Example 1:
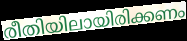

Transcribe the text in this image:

രീതിയിലായിരിക്കണം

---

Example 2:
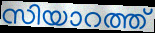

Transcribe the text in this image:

സിയാറത്ത്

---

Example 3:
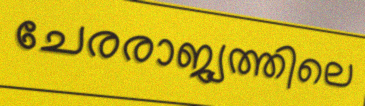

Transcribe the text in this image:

ചേരരാജ്യത്തിലെ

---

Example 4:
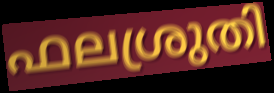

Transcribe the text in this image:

ഫലശ്രുതി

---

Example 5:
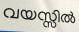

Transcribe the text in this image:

വയസ്സിൽ